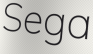
Sega